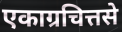
एकाग्रचित्तसे